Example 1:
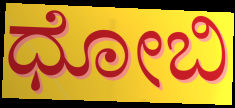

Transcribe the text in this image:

ಧೋಬಿ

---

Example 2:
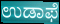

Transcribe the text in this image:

ಉಡಾಫೆ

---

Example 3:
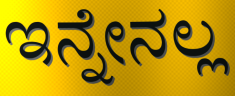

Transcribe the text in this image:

ಇನ್ನೇನಲ್ಲ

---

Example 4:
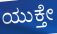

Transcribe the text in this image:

ಯುಕ್ತೇ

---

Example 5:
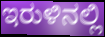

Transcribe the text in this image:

ಇರುಳಿನಲ್ಲಿ